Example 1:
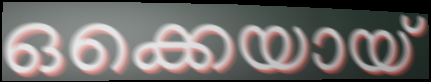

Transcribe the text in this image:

ഒക്കെയായ്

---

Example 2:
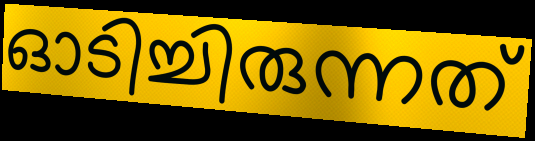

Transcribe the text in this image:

ഓടിച്ചിരുന്നത്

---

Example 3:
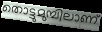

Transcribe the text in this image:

തൊട്ടുമുമ്പിലാണ്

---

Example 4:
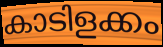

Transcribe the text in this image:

കാടിളക്കം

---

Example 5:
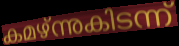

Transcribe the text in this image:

കമഴ്ന്നുകിടന്ന്